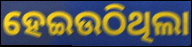
ହେଇଉଠିଥିଲା